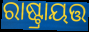
ରାଷ୍ଟ୍ରାୟତ୍ତ